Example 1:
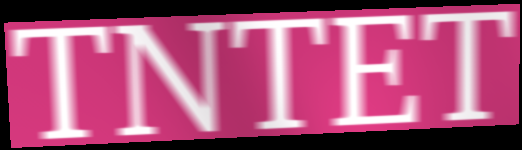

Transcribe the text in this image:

TNTET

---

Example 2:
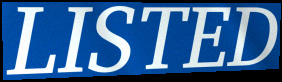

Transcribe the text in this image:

LISTED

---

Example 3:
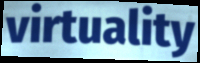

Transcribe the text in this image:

virtuality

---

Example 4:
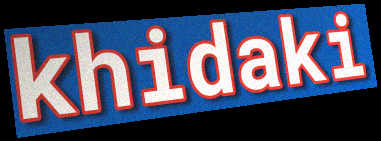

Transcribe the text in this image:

khidaki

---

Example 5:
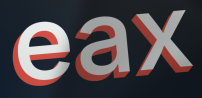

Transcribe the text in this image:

eax